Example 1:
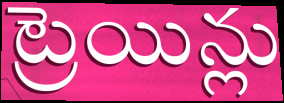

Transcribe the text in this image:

ట్రెయిన్లు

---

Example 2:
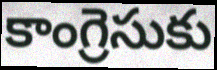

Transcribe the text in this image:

కాంగ్రెసుకు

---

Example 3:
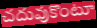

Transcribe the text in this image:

చదువుకొంటూ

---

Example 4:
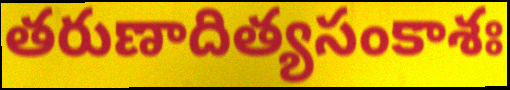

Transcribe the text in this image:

తరుణాదిత్యసంకాశః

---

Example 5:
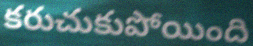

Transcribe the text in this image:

కరుచుకుపోయింది